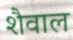
शैवाल